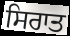
ਸਿਰਾਤ